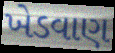
ખેડવાણ